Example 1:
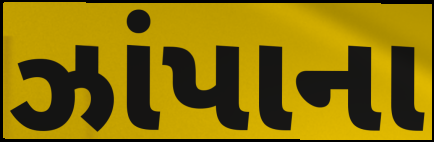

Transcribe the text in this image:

ઝાંપાના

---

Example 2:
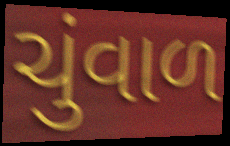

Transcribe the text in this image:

ચુંવાળ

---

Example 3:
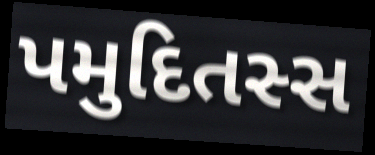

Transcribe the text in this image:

પમુદિતસ્સ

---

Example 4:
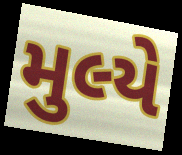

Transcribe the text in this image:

મુલ્યે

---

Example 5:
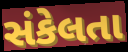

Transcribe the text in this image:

સંકેલતા